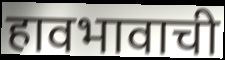
हावभावाची